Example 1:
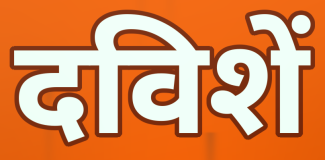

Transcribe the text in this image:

दविशें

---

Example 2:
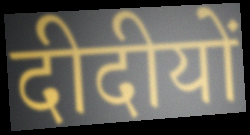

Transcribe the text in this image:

दीदीयों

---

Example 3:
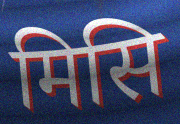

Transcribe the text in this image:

मिसि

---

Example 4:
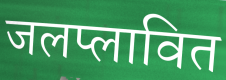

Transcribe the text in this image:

जलप्लावित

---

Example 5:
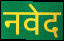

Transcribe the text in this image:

नवेद